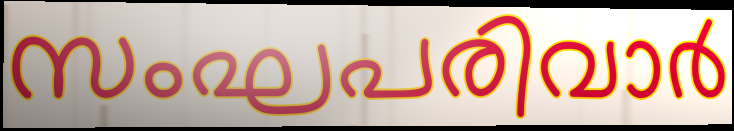
സംഘപരിവാർ